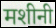
मशीनी